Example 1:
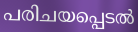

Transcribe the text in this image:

പരിചയപ്പെടൽ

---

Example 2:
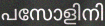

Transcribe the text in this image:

പസോളിനി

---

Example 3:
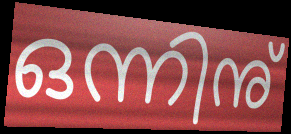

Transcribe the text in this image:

ഒന്നിനു്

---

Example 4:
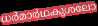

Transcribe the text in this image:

ധർമാർഥകുശലോ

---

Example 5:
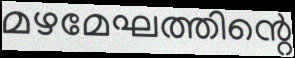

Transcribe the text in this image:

മഴമേഘത്തിന്റെ